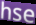
hse